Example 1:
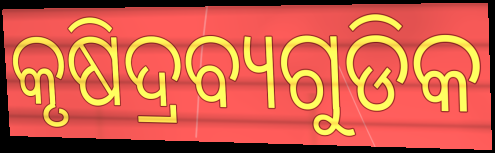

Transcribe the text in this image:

କୃଷିଦ୍ରବ୍ୟଗୁଡିକ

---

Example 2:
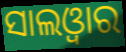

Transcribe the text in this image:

ସାଲଓ୍ଵାର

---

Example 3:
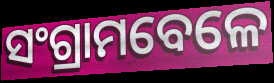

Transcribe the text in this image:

ସଂଗ୍ରାମବେଳେ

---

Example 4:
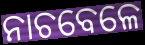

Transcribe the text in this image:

ନାଚବେଳେ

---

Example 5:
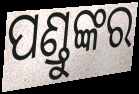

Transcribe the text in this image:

ପଣ୍ଡୁଙ୍କର